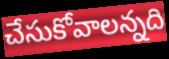
చేసుకోవాలన్నది